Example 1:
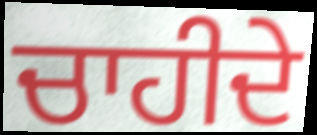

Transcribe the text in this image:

ਚਾਹੀਦੇ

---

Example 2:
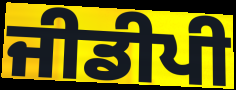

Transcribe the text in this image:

ਜੀਡੀਪੀ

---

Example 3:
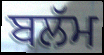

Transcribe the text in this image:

ਬਲੱਮ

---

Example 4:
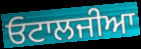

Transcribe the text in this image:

ਓਟਾਲਜੀਆ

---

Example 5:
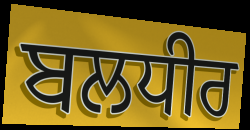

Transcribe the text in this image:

ਬਲਧੀਰ